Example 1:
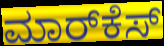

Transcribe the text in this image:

ಮಾರ್‌ಕೆಸ್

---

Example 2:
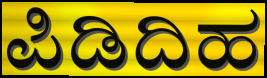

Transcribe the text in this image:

ಪಿಡಿದಿಹ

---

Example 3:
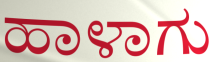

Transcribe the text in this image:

ಹಾಳಾಗು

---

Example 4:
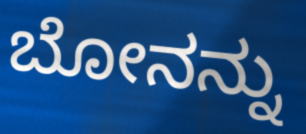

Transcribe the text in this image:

ಬೋನನ್ನು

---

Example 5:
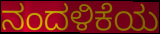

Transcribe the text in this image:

ನಂದಳಿಕೆಯ